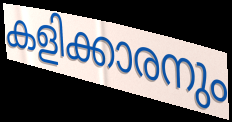
കളിക്കാരനും